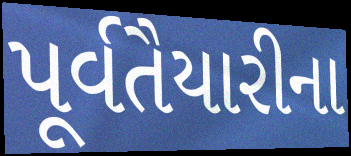
પૂર્વતૈયારીના